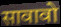
सावावो